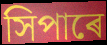
সিপাৰে